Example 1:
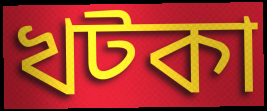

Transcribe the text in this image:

খট্কা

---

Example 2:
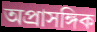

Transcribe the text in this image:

অপ্রাসঙ্গিক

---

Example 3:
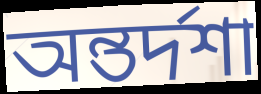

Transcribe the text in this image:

অন্তর্দশা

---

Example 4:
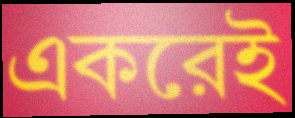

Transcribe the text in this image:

একরেই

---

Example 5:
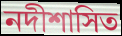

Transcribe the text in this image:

নদীশাসিত